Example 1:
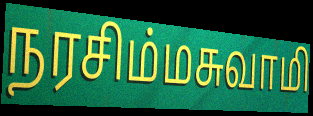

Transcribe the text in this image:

நரசிம்மசுவாமி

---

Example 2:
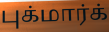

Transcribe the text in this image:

புக்மார்க்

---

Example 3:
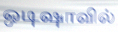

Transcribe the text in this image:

ஒடிஷாவில்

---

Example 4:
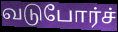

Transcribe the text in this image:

வடுபோர்ச்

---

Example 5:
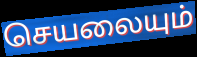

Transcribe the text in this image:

செயலையும்